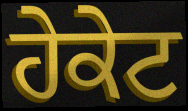
ਹੇਕੇਟ